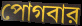
পোগবার